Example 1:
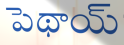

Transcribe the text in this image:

పెథాయ్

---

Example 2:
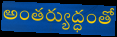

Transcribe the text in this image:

అంతర్యుద్ధంతో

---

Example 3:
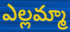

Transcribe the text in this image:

ఎల్లమ్మా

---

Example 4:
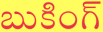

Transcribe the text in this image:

బుకింగ్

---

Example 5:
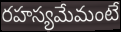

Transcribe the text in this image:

రహస్యమేమంటే